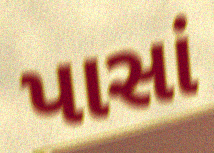
પાસાં